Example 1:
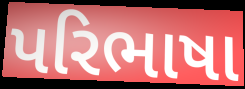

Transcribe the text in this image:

પરિભાષા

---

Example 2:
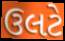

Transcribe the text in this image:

ઉલટે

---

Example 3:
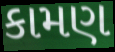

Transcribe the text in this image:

કામણ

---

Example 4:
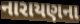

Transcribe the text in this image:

નારાયણના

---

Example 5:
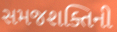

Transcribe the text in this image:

સમજશક્તિની